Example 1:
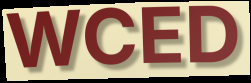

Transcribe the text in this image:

WCED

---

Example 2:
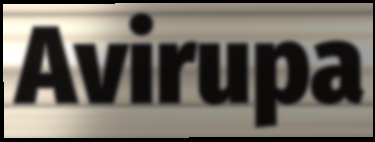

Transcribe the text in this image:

Avirupa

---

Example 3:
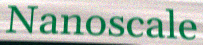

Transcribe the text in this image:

Nanoscale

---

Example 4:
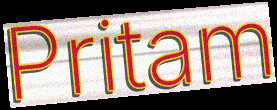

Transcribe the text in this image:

Pritam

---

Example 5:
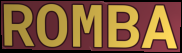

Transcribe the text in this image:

ROMBA